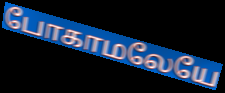
போகாமலேயே